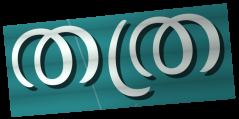
തത്ര